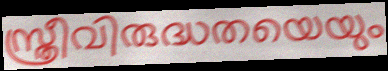
സ്ത്രീവിരുദ്ധതയെയും